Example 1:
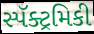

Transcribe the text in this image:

સ્પૅક્ટ્રમિકી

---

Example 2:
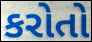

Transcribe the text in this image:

કરોતો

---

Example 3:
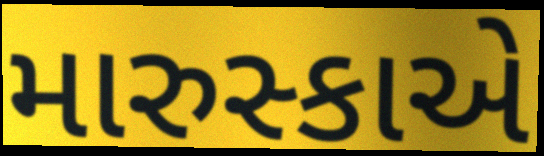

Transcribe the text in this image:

મારુસ્કાએ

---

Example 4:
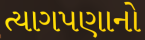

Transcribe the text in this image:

ત્યાગપણાનો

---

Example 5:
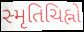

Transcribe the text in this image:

સ્મૃતિચિહ્નો